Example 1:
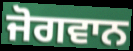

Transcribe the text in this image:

ਜੋਗਵਾਨ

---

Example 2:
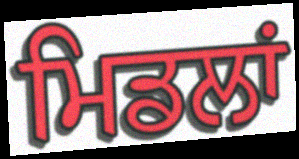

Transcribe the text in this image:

ਮਿਡਲਾਂ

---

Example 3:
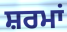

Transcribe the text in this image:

ਸ਼ਰਮਾਂ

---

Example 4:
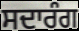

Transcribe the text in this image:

ਸਦਾਰੰਗ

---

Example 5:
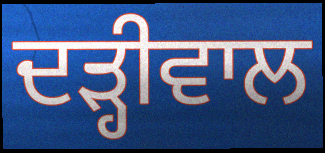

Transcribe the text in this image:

ਦੜ੍ਹੀਵਾਲ